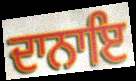
ਦਾਨਾਇ